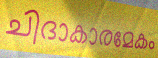
ചിദാകാരമേകം